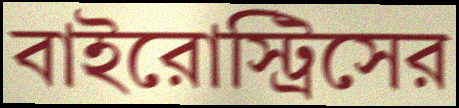
বাইরোস্ট্রিসের